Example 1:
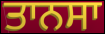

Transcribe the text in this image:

ਤਾਨਸਾ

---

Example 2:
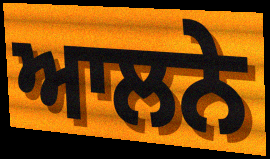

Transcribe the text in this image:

ਆਲਨੇ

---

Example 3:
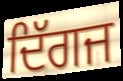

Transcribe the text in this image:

ਦਿੱਗਜ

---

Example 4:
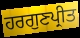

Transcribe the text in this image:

ਹਰਗੁਣਪ੍ਰੀਤ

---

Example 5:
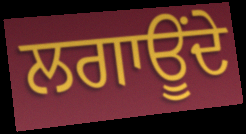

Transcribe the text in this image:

ਲਗਾਊਂਦੇ